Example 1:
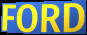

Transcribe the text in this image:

FORD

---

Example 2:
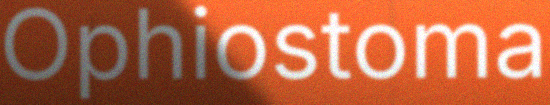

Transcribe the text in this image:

Ophiostoma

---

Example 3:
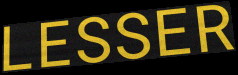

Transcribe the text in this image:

LESSER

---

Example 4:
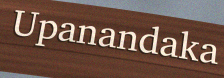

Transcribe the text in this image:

Upanandaka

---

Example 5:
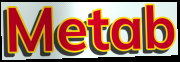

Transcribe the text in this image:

Metab